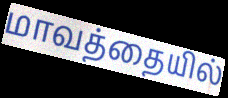
மாவத்தையில்